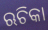
ଋଚିକା